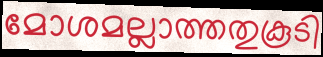
മോശമല്ലാത്തതുകൂടി